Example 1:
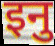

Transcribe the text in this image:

इनु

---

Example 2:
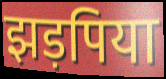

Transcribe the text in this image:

झड़पिया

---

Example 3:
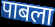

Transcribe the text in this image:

पाबला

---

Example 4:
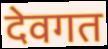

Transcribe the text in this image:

देवगत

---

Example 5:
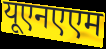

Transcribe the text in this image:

यूएनएएम